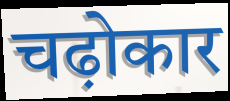
चढ़ोकार